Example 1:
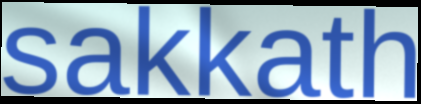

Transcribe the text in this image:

sakkath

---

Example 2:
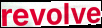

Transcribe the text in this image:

revolve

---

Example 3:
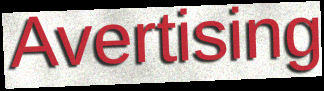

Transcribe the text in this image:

Avertising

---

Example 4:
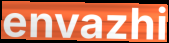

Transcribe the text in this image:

envazhi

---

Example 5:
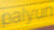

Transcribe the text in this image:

palyun